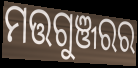
ମତ୍ତଗୁଞ୍ଜରର